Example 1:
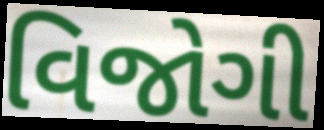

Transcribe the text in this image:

વિજોગી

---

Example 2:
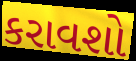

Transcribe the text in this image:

કરાવશો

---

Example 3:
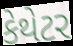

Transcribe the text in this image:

કેથેટર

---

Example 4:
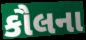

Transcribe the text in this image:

કૌલના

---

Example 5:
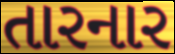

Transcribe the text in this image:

તારનાર